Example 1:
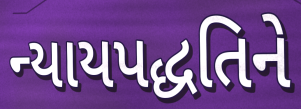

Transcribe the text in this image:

ન્યાયપદ્ધતિને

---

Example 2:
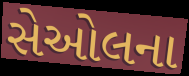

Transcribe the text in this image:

સેઓલના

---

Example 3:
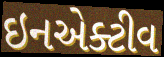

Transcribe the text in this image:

ઇનએક્ટીવ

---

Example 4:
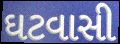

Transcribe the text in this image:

ઘટવાસી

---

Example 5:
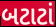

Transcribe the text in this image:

બટાટાં